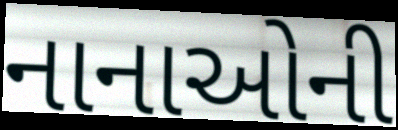
નાનાઓની